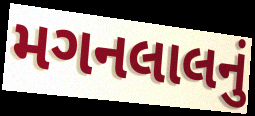
મગનલાલનું